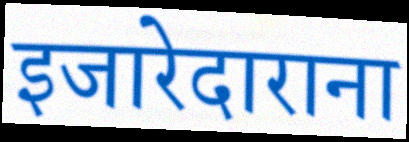
इजारेदाराना